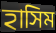
হাসিম